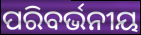
ପରିବର୍ଭନୀୟ